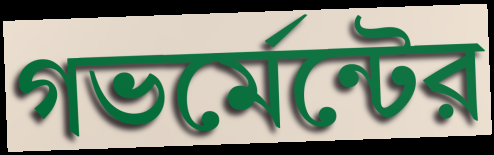
গভর্মেন্টের